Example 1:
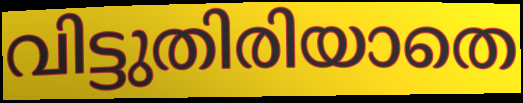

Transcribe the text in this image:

വിട്ടുതിരിയാതെ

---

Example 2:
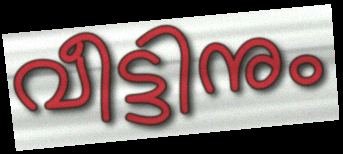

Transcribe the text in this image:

വീട്ടിനും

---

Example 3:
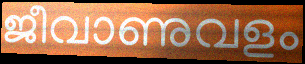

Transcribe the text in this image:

ജീവാണുവളം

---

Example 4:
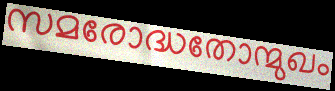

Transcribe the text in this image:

സമരോദ്ധതോന്മുഖം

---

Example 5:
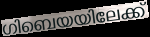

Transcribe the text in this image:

ഗിബെയയിലേക്ക്